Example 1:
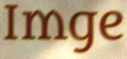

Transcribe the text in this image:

Imge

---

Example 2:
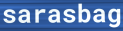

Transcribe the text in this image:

sarasbag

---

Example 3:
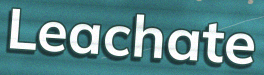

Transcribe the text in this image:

Leachate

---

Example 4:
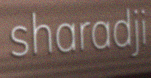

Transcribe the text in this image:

sharadji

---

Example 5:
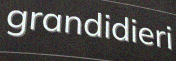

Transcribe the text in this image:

grandidieri